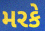
મરકે